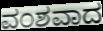
ವಂಶವಾದ